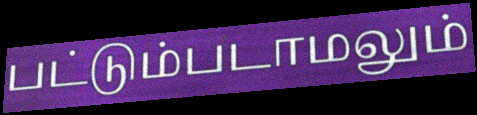
பட்டும்படாமலும்